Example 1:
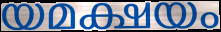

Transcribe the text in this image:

യമക്ഷയം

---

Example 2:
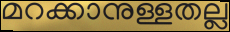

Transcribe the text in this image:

മറക്കാനുള്ളതല്ല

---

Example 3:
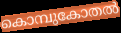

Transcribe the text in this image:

കൊമ്പുകോതൽ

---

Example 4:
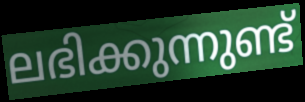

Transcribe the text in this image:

ലഭിക്കുന്നുണ്ട്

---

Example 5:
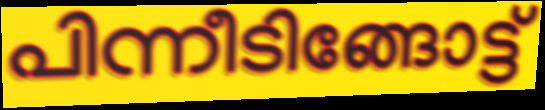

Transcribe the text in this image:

പിന്നീടിങ്ങോട്ട്